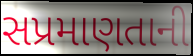
સપ્રમાણતાની